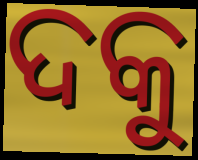
ଦକୁ